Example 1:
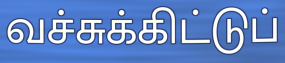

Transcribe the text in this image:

வச்சுக்கிட்டுப்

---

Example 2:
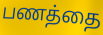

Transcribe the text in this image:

பணத்தை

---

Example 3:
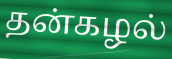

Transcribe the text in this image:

தன்கழல்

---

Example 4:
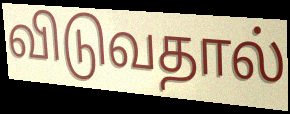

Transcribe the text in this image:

விடுவதால்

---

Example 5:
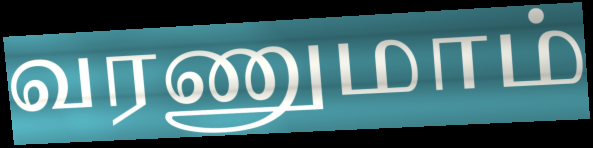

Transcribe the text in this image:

வரணுமாம்